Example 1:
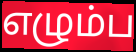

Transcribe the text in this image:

எழும்ப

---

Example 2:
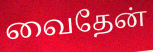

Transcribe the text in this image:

வைதேன்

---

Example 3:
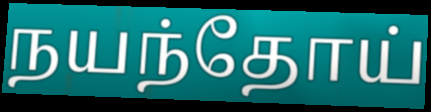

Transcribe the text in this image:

நயந்தோய்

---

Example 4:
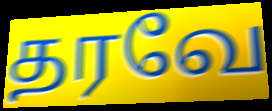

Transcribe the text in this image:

தரவே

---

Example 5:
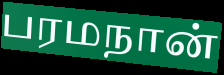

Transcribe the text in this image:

பரமநான்